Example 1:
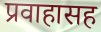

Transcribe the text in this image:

प्रवाहासह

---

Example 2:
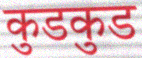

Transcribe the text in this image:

कुडकुड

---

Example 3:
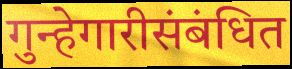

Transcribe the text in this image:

गुन्हेगारीसंबंधित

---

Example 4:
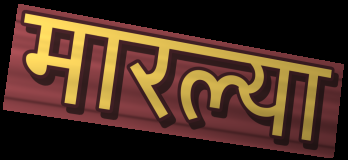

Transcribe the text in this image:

मारल्या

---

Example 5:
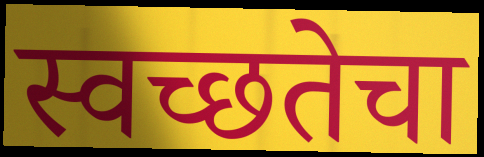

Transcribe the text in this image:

स्वच्छतेचा